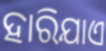
ହାରିଯାଏ